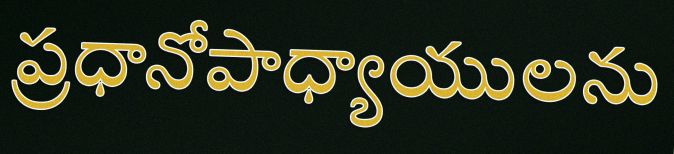
ప్రధానోపాధ్యాయులను